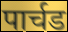
पार्चड